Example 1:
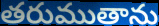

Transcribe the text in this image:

తరుముతాను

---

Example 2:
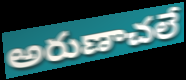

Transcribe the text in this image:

అరుణాచలే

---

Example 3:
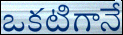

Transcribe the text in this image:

ఒకటిగానే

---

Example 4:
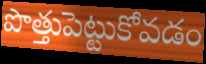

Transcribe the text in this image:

పొత్తుపెట్టుకోవడం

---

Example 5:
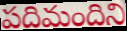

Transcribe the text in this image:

పదిమందిని